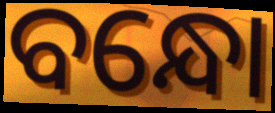
ବନ୍ଧୋ